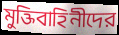
মুক্তিবাহিনীদের